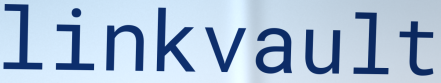
linkvault